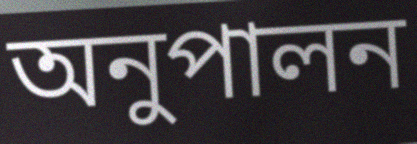
অনুপালন